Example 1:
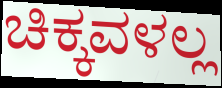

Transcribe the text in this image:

ಚಿಕ್ಕವಳಲ್ಲ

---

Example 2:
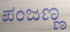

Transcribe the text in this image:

ಪಂಜಣ್ಣ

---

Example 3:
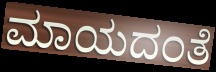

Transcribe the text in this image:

ಮಾಯದಂತೆ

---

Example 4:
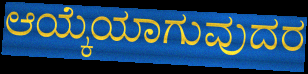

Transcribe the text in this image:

ಆಯ್ಕೆಯಾಗುವುದರ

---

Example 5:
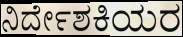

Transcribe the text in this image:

ನಿರ್ದೇಶಕಿಯರ